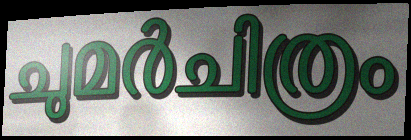
ചുമർചിത്രം